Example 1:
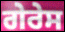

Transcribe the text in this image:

ਗੇਰੇਸ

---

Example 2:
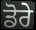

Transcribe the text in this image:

ਡੋਰੇ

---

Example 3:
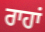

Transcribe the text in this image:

ਰਾਹਾਂ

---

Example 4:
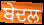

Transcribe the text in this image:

ਬੇਦਲ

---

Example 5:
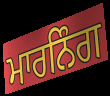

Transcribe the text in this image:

ਮਾਰਨਿੰਗ